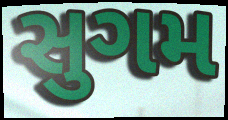
સુગમ